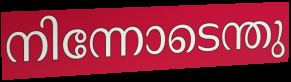
നിന്നോടെന്തു